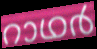
റാഥർ